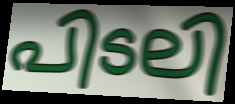
പിടലി